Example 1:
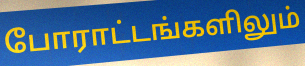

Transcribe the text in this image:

போராட்டங்களிலும்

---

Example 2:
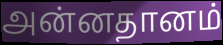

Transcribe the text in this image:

அன்னதானம்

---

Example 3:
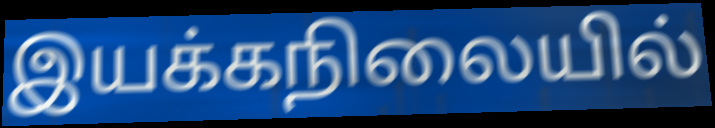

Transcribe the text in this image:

இயக்கநிலையில்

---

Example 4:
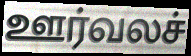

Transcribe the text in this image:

ஊர்வலச்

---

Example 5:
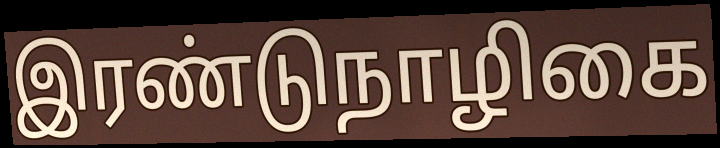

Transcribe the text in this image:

இரண்டுநாழிகை